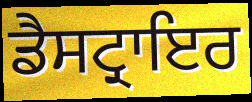
ਡੈਸਟ੍ਰਾਇਰ